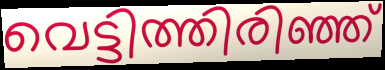
വെട്ടിത്തിരിഞ്ഞ്